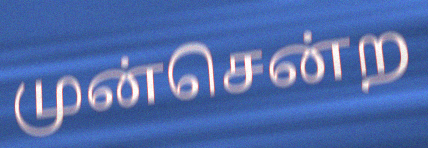
முன்சென்ற